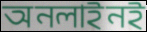
অনলাইনই